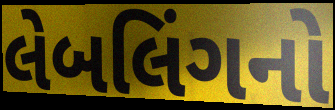
લેબલિંગનો